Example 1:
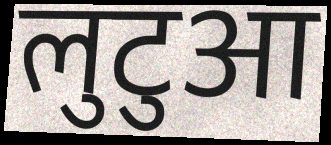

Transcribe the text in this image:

लुटुआ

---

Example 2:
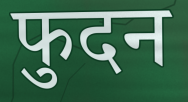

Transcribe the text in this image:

फुदन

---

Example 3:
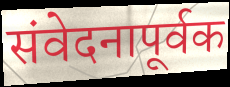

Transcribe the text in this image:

संवेदनापूर्वक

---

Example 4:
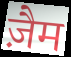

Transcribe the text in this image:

ज़ैम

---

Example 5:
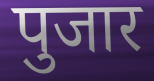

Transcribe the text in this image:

पुजार